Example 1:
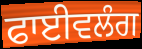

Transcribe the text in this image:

ਫਾਈਵਲੰਗ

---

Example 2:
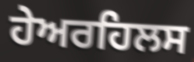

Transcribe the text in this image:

ਹੇਅਰਹਿਲਸ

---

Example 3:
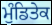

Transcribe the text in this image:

ਮੁੰਡਿਤੇਕ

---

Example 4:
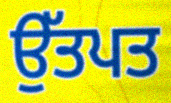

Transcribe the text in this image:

ਉੱਤਪਤ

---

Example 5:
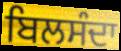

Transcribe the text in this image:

ਬਿਲਸੰਦਾ